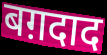
बग़दाद